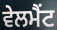
ਵੇਲਮੈਂਟ